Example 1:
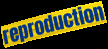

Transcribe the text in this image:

reproduction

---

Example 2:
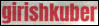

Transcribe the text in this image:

girishkuber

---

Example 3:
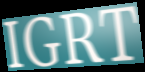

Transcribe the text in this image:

IGRT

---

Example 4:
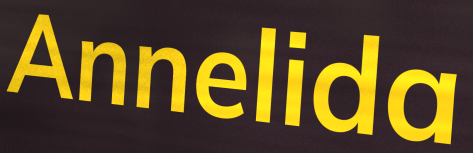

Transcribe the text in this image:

Annelida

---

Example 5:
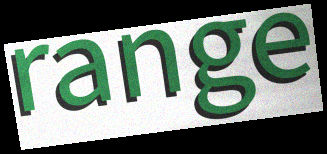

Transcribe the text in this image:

range